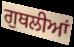
ਗੁਥਲੀਆਂ